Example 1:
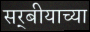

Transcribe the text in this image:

सर्बीयाच्या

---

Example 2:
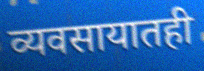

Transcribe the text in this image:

व्यवसायातही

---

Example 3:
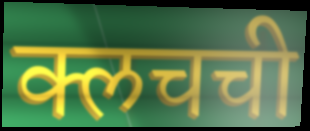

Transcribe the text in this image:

क्लचची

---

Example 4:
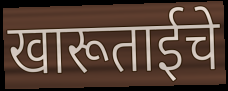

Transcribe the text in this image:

खारूताईचे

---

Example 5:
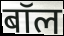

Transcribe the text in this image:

बॉल